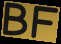
BF